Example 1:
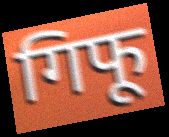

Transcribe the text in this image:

गिफू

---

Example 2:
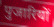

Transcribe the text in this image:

पुजारियों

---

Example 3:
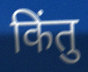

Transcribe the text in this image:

किंतु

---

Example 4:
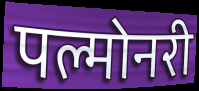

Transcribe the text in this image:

पल्मोनरी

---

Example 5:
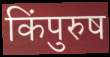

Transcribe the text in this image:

किंपुरुष